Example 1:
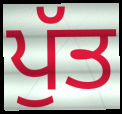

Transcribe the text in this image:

ਪੁੱਤ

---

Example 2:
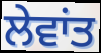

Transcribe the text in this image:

ਲੇਵਾਂਤ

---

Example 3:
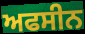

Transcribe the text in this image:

ਅਫਸੀਨ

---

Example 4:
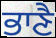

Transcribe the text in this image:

ਭਾਣੈ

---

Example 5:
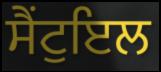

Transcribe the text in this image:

ਸੈਂਟੁਇਲ